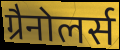
ग्रैनोलर्स